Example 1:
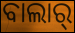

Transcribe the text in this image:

ବାଲାର୍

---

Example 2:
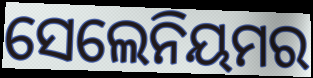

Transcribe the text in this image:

ସେଲେନିୟମର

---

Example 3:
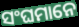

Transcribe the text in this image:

ସଂଘମାନେ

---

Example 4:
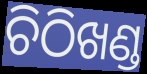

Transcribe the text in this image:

ଚିଠିଖଣ୍ଡ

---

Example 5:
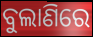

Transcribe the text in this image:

ବୁଲାଣିରେ